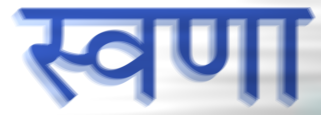
स्वणा